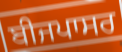
ਬੀਜਪਾਸਰ